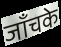
जाँचके